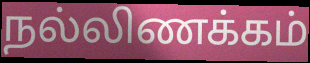
நல்லிணக்கம்